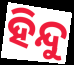
ହିନ୍ଦୁ